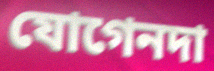
যোগেনদা